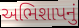
અભિશાપનું